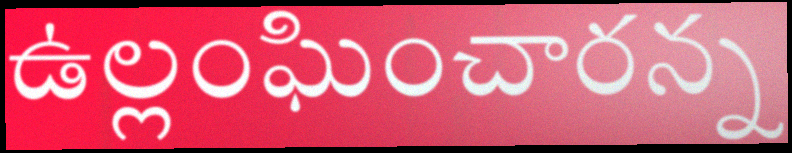
ఉల్లంఘించారన్న